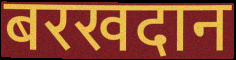
बरखदान